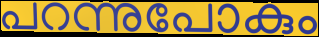
പറന്നുപോകും